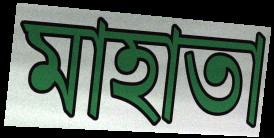
মাহাতা